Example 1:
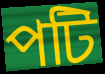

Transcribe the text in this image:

পটি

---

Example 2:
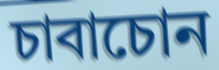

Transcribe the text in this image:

চাবাচোন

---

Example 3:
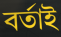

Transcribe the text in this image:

বৰ্তাই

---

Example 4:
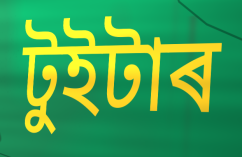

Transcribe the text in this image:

টুইটাৰ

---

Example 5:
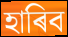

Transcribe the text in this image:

হাৰিব